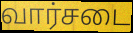
வார்சடை